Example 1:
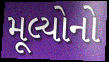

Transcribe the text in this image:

મૂલ્યોનો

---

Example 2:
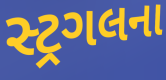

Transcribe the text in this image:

સ્ટ્રગલના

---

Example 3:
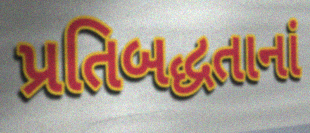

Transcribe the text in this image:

પ્રતિબદ્ધતાનાં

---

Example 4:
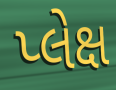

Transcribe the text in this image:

પ્લેક્ષ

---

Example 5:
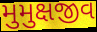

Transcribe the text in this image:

મુમુક્ષજીવ